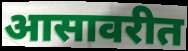
आसावरीत